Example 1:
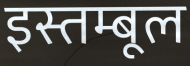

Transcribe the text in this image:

इस्तम्बूल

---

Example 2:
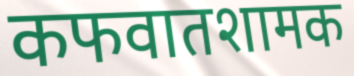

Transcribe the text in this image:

कफवातशामक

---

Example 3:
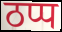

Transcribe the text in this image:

ठप्प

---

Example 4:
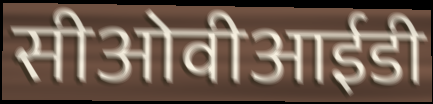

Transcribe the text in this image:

सीओवीआईडी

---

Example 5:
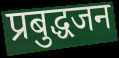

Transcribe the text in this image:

प्रबुद्धजन